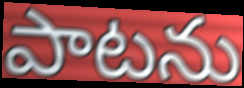
పాటను